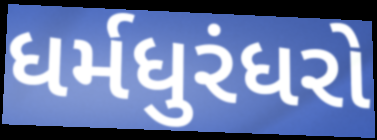
ધર્મધુરંધરો